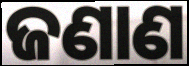
ଜଣାଣ